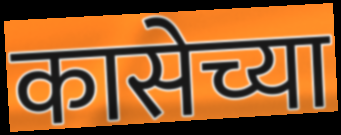
कासेच्या